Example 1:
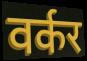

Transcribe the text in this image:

वर्कर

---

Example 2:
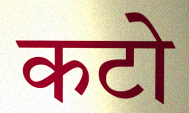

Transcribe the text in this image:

कटो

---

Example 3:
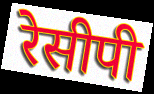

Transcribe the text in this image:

रेसीपी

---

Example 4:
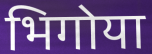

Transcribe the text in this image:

भिगोया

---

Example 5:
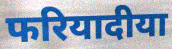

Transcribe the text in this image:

फरियादीया